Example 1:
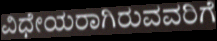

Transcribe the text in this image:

ವಿಧೇಯರಾಗಿರುವವರಿಗೆ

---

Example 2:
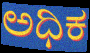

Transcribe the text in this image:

ಅಧಿಕ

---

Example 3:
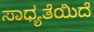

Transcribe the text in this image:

ಸಾಧ್ಯತೆಯಿದೆ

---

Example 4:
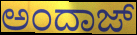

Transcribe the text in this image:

ಅಂದಾಜ್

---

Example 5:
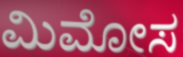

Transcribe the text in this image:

ಮಿಮೋಸ